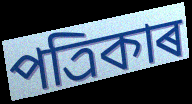
পত্ৰিকাৰ